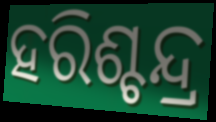
ହରିଶ୍ଚନ୍ଦ୍ର